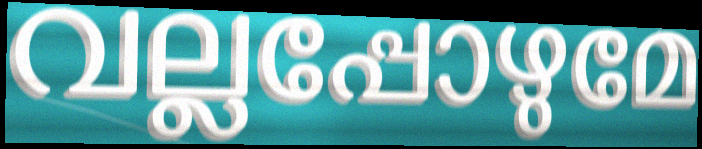
വല്ലപ്പോഴുമേ